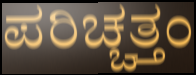
ಪರಿಚ್ಚತ್ತಂ